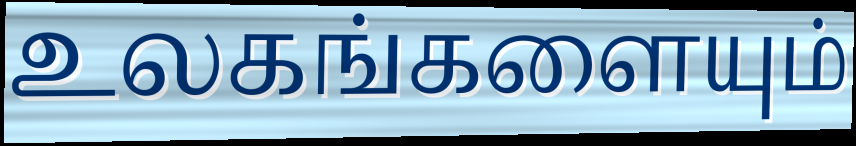
உலகங்களையும்